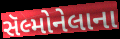
સૅલ્મોનેલાના